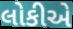
લોકીએ